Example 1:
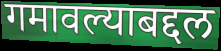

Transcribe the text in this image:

गमावल्याबद्दल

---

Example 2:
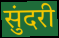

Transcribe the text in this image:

सुंदरी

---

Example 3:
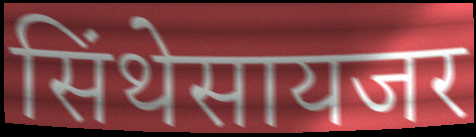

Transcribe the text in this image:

सिंथेसायजर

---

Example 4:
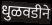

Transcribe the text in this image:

धुळवडीने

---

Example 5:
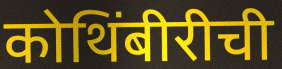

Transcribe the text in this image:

कोथिंबीरीची